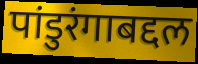
पांडुरंगाबद्दल